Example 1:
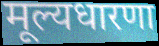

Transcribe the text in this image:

मूल्यधारणा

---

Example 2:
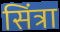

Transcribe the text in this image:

सिंत्रा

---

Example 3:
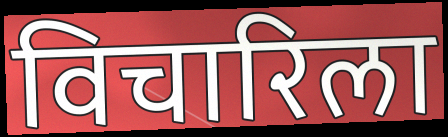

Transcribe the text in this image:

विचारिला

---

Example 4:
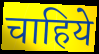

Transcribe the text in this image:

चाहिये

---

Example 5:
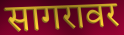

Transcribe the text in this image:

सागरावर